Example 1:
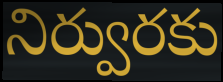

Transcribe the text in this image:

నిర్వురకు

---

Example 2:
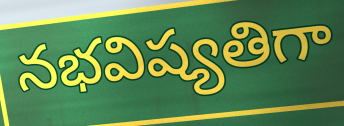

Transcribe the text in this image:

నభవిష్యతిగా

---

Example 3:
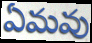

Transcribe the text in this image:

ఏమవు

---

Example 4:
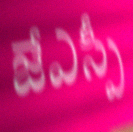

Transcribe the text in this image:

జేఎస్పీ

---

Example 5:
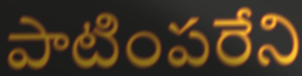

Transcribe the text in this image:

పాటింపరేని